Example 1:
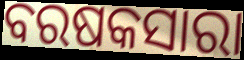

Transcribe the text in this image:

ବରଷକସାରା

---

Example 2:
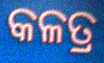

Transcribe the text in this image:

କଳତ୍ର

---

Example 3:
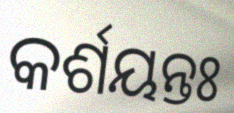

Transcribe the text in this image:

କର୍ଶୟନ୍ତଃ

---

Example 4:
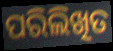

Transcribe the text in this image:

ପରିଲିଖିତ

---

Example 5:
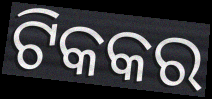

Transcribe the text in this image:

ଟିକକର